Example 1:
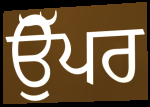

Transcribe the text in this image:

ਉੋੱਪਰ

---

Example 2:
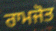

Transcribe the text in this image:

ਰਾਮਜੋਤ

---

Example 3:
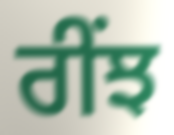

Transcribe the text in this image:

ਰੀਂਝ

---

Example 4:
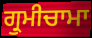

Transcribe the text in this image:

ਗ੍ਰੁਮੀਚਾਮਾ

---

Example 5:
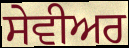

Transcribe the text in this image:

ਸੇਵੀਅਰ